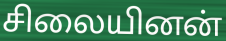
சிலையினன்